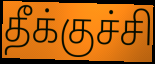
தீக்குச்சி